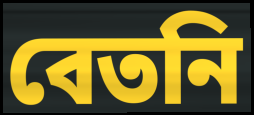
বেতনি